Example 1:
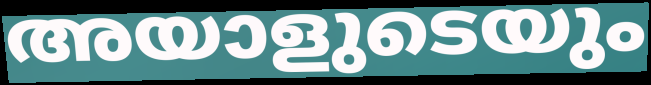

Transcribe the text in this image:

അയാളുടെയും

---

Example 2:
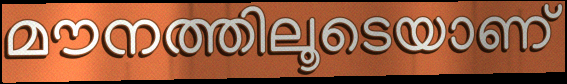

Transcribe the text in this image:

മൗനത്തിലൂടെയാണ്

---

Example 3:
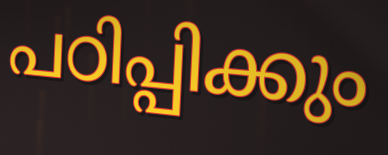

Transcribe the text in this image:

പഠിപ്പിക്കും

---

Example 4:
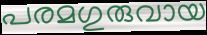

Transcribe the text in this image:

പരമഗുരുവായ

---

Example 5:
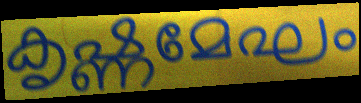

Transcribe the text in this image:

കൃഷ്ണമേഘം